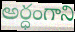
అర్ధంగాని